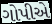
ગોપીએ